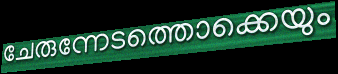
ചേരുന്നേടത്തൊക്കെയും